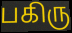
பகிரு